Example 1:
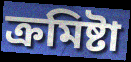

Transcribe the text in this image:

ক্ৰমিষ্টা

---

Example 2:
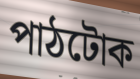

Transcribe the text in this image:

পাঠটোক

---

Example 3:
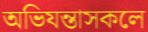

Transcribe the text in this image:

অভিযন্তাসকলে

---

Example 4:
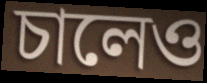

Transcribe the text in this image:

চালেও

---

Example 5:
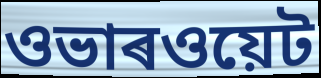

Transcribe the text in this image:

ওভাৰওয়েট